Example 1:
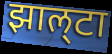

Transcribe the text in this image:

झाल्टा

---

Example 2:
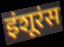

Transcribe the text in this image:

इंशूरंस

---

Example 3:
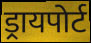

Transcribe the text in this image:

ड्रायपोर्ट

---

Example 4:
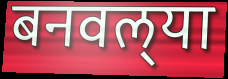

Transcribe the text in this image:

बनवल्या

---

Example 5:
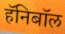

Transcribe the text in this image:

हॅनिबॉल